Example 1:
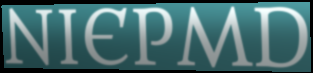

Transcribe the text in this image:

NIEPMD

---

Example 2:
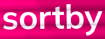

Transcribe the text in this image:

sortby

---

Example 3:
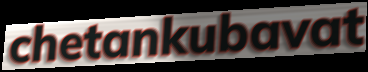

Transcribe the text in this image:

chetankubavat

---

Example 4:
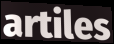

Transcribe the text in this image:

artiles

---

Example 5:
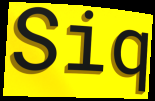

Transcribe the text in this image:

Siq